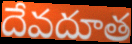
దేవదూత